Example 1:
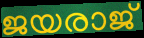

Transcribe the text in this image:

ജയരാജ്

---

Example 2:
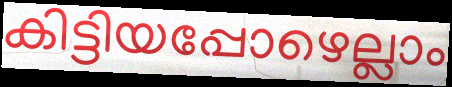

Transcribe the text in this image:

കിട്ടിയപ്പോഴെല്ലാം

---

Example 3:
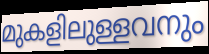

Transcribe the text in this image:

മുകളിലുള്ളവനും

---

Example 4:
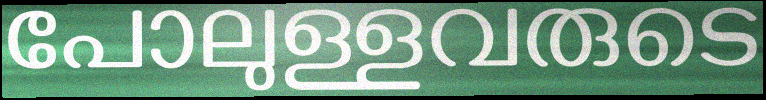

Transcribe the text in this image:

പോലുള്ളവരുടെ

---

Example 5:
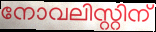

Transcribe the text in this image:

നോവലിസ്റ്റിന്